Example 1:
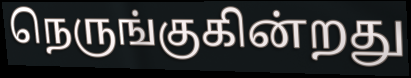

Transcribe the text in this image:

நெருங்குகின்றது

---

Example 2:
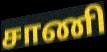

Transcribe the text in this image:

சாணி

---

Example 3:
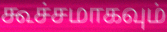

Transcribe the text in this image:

கூச்சமாகவும்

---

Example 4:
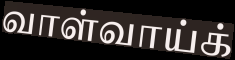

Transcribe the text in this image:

வாள்வாய்க்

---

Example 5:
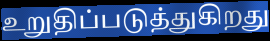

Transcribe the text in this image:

உறுதிப்படுத்துகிறது